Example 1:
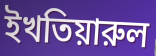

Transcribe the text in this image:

ইখতিয়ারুল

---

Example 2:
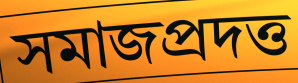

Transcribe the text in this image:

সমাজপ্রদত্ত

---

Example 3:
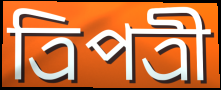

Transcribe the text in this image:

ত্রিপত্রী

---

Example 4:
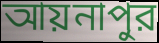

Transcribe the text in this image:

আয়নাপুর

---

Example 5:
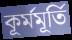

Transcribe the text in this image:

কূর্মমূর্তি